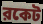
রকেট